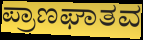
ಪ್ರಾಣಘಾತವ